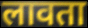
लावता